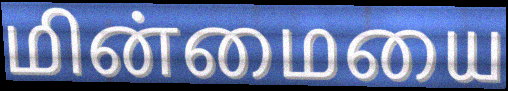
மின்மையை